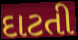
દાટતી